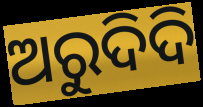
ଅରୁଦିଦି